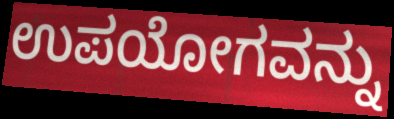
ಉಪಯೋಗವನ್ನು